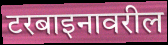
टरबाइनावरील